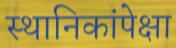
स्थानिकांपेक्षा